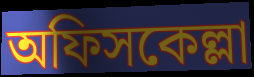
অফিসকেল্লা